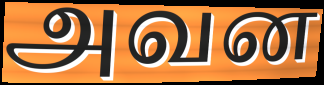
அவன